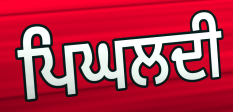
ਪਿਘਲਦੀ